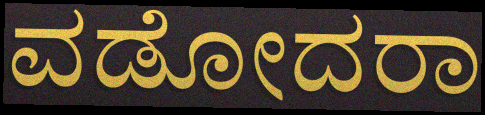
ವಡೋದರಾ